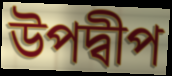
উপদ্বীপ